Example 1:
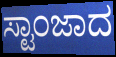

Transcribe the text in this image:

ಸ್ಟಾಂಜಾದ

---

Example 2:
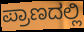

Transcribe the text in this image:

ಪ್ರಾಣದಲ್ಲಿ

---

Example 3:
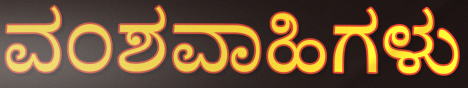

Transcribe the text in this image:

ವಂಶವಾಹಿಗಳು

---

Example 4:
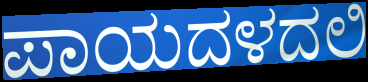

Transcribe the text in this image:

ಪಾಯದಳದಲಿ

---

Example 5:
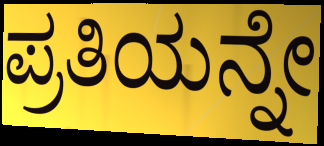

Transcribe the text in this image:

ಪ್ರತಿಯನ್ನೇ